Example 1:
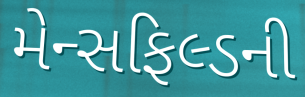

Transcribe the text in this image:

મેન્સફિલ્ડની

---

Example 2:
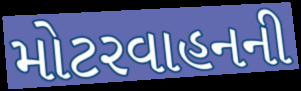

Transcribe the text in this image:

મોટરવાહનની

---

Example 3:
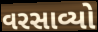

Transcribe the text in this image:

વરસાવ્યો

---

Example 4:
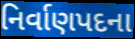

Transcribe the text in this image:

નિર્વાણપદના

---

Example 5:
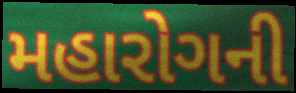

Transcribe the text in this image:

મહારોગની